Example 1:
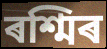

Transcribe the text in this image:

ৰশ্মিৰ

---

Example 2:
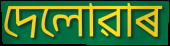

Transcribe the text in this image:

দেলোৱাৰ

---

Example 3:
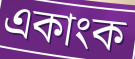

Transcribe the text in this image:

একাংক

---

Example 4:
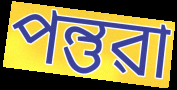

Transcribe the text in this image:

পন্তুৱা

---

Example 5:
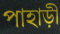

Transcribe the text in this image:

পাহাড়ী